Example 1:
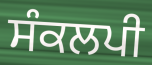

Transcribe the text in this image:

ਸੰਕਲਪੀ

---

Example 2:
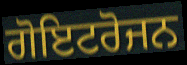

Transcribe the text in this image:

ਗੋਇਟਰੋਜਨ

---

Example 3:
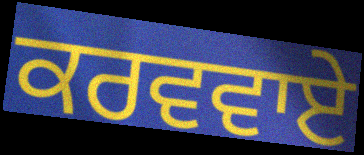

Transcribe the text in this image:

ਕਰਵਵਾਏ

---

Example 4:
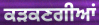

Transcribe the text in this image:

ਕੜਕਣਗੀਆਂ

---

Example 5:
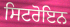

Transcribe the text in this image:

ਸਿਟਰੋਇਨ